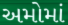
અમોમાં